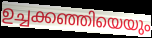
ഉച്ചക്കഞ്ഞിയെയും